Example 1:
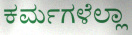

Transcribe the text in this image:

ಕರ್ಮಗಳೆಲ್ಲಾ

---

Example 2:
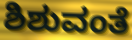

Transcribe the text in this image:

ಶಿಶುವಂತೆ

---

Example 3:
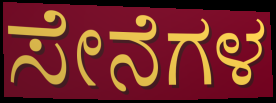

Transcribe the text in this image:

ಸೇನೆಗಳ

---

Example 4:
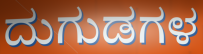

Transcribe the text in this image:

ದುಗುಡಗಳ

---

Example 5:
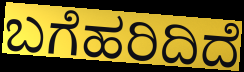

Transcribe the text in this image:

ಬಗೆಹರಿದಿದೆ